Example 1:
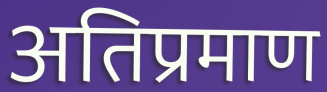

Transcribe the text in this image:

अतिप्रमाण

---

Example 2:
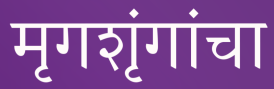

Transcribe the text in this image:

मृगशृंगांचा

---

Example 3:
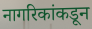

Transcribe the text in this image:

नागरिकांकडून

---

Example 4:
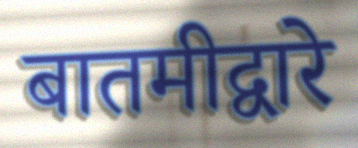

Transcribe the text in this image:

बातमीद्वारे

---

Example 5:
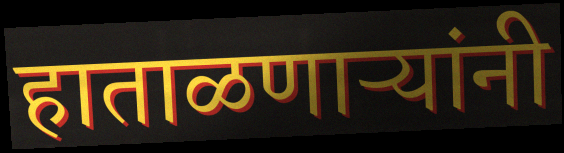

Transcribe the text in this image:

हाताळणाऱ्यांनी